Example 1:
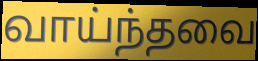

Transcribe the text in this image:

வாய்ந்தவை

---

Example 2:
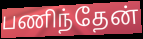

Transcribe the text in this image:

பணிந்தேன்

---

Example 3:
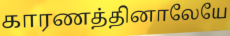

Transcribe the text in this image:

காரணத்தினாலேயே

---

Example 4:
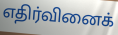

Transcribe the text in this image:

எதிர்வினைக்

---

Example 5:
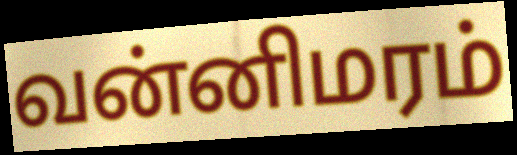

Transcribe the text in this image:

வன்னிமரம்